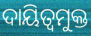
ଦାୟିତ୍ୱମୁକ୍ତ